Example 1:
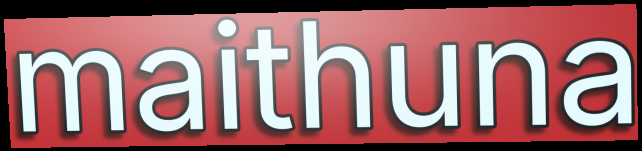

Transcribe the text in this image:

maithuna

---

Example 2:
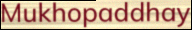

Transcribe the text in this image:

Mukhopaddhay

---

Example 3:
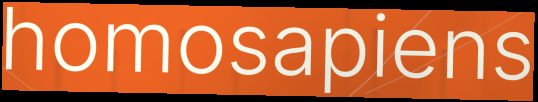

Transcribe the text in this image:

homosapiens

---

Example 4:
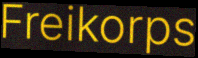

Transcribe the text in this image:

Freikorps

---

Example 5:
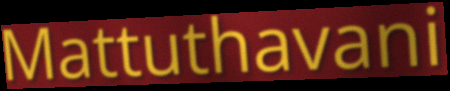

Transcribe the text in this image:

Mattuthavani